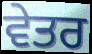
ਵੇਤਰ